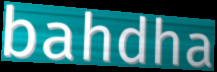
bahdha